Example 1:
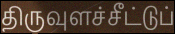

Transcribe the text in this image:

திருவுளச்சீட்டுப்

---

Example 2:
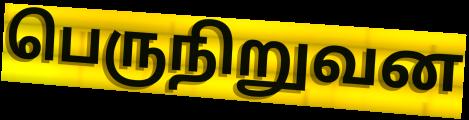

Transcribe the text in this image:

பெருநிறுவன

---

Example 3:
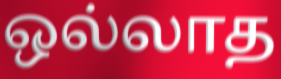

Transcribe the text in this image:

ஒல்லாத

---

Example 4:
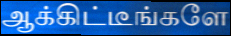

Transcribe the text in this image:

ஆக்கிட்டீங்களே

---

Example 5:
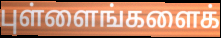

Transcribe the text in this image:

புள்ளைங்களைக்